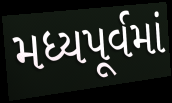
મધ્યપૂર્વમાં